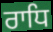
ਰਾਧਿ